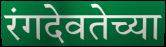
रंगदेवतेच्या